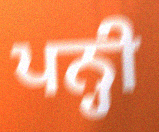
ਪਨ੍ਹੀ